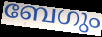
ബേഗും